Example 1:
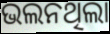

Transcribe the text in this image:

ଭଲନଥିଲା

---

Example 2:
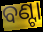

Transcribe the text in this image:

ବଣ୍ଟା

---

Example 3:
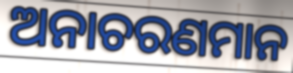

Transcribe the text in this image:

ଅନାଚରଣମାନ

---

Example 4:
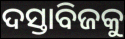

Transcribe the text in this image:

ଦସ୍ତାବିଜକୁ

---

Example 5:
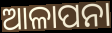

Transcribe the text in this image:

ଆଳାପନା